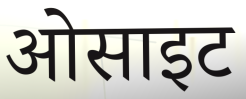
ओसाइट